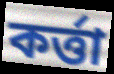
কর্ত্তা